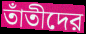
তাঁতীদের